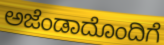
ಅಜೆಂಡಾದೊಂದಿಗೆ